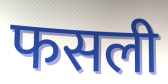
फसली